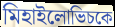
মিহাইলোভিচকে